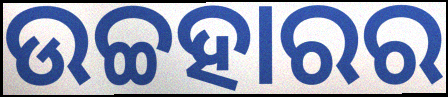
ଉଚ୍ଚହାରର